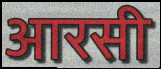
आरसी